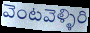
వెంటవెళ్ళిరి